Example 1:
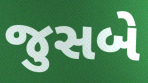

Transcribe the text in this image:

જુસબે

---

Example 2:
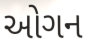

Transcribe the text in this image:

ઓગન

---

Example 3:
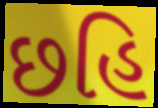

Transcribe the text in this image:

છહિ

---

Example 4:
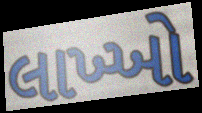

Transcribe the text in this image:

લાખ્ખો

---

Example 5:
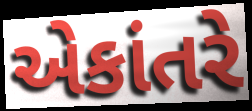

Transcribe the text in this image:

એકાંતરે